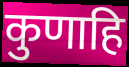
कुणाहि